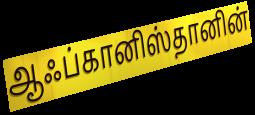
ஆஃப்கானிஸ்தானின்